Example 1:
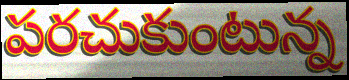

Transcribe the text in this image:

పరచుకుంటున్న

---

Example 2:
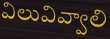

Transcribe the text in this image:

విలువివ్వాలి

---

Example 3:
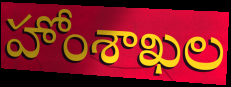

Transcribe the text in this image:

హోంశాఖల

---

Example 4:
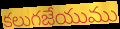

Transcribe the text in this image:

కలుగజేయుము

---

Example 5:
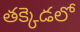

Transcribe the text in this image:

తక్కెడలో